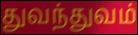
துவந்துவம்